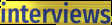
interviews